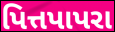
પિત્તપાપરા